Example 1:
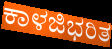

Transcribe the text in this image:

ಕಾಳಜಿಭರಿತ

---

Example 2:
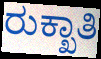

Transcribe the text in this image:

ರುಕ್ಖಾತಿ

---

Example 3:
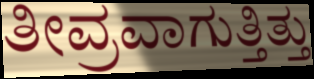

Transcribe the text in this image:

ತೀವ್ರವಾಗುತ್ತಿತ್ತು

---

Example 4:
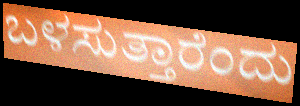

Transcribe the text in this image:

ಬಳಸುತ್ತಾರೆಂದು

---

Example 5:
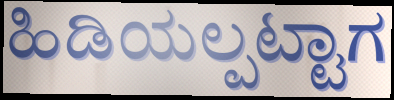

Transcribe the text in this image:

ಹಿಡಿಯಲ್ಪಟ್ಟಾಗ